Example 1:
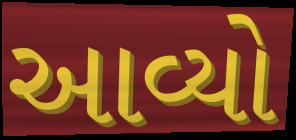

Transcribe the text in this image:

આવ્યો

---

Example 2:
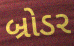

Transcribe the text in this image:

બ્રોડર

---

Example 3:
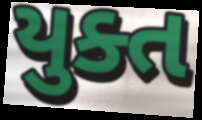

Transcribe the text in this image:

યુક્ત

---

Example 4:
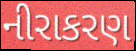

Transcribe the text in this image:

નીરાકરણ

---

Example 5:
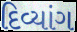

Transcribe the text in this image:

દિવ્યાંગ